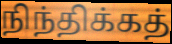
நிந்திக்கத்